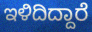
ಇಳಿದಿದ್ದಾರೆ